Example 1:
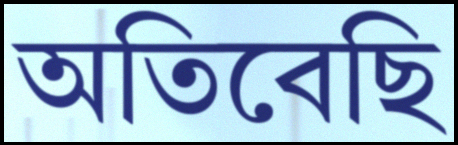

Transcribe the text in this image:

অতিবেছি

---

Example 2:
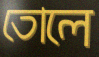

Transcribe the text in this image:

তোলে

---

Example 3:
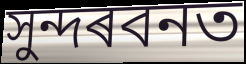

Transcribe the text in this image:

সুন্দৰবনত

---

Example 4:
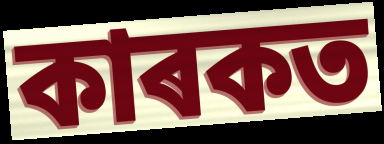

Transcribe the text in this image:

কাৰকত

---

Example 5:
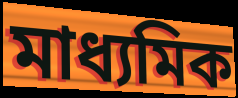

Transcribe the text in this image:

মাধ্যমিক